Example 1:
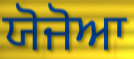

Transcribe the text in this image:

ਯੋਜੋਆ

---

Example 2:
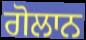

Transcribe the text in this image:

ਗੋਲਾਨ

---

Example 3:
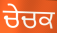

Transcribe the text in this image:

ਚੇਚਕ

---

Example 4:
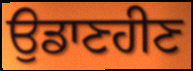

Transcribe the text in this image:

ਉਡਾਣਹੀਣ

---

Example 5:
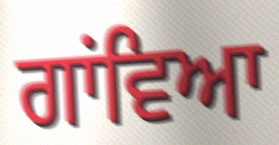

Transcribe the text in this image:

ਗਾਂਵਿਆ